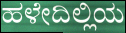
ಹಳೇದಿಲ್ಲಿಯ